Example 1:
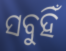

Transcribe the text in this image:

ସବୁହିଁ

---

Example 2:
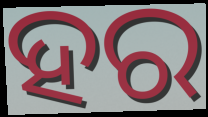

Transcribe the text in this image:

ହର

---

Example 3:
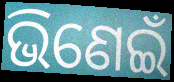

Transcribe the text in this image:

ଭିଣେଇଁ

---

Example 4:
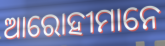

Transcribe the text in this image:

ଆରୋହୀମାନେ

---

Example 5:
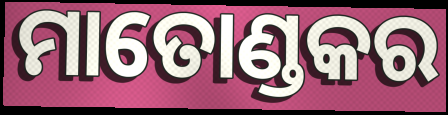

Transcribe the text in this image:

ମାତୋଣ୍ଡକର